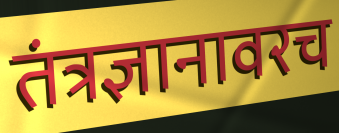
तंत्रज्ञानावरच